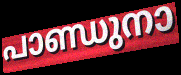
പാണ്ഡുനാ